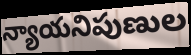
న్యాయనిపుణుల